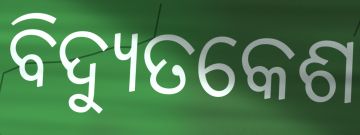
ବିଦ୍ୟୁତକେଶ